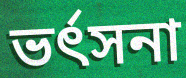
ভর্ৎসনা